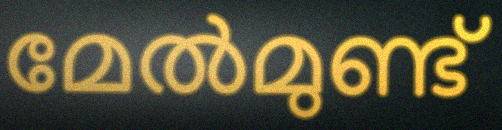
മേൽമുണ്ട്